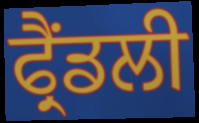
ਫ੍ਰੈਂਡਲੀ